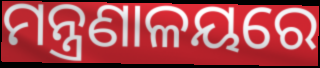
ମନ୍ତ୍ରଣାଳୟରେ